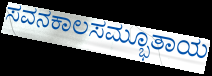
ಸವನಕಾಲಸಮ್ಭೂತಾಯ